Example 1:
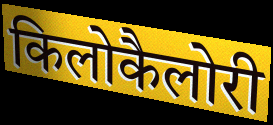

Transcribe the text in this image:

किलोकैलोरी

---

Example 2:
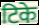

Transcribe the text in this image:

टिके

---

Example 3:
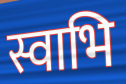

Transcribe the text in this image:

स्वाभि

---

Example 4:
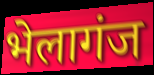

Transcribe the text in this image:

भेलागंज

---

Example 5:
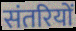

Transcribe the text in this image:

संतरियों